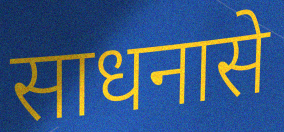
साधनासे